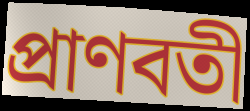
প্রাণবতী